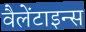
वैलेंटाइन्स